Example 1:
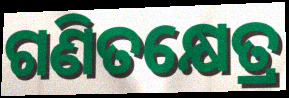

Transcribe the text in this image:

ଗଣିତକ୍ଷେତ୍ର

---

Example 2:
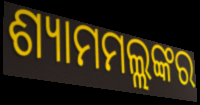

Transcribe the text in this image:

ଶ୍ୟାମମଲ୍ଲଙ୍କର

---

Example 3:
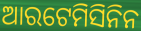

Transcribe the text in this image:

ଆରଟେମିସିନିନ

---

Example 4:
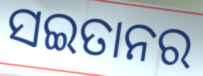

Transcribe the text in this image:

ସଇତାନର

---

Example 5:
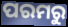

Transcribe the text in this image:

ପରମରୁ